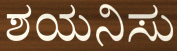
ಶಯನಿಸು